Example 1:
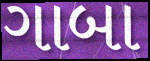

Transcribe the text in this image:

ગાબા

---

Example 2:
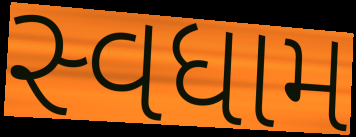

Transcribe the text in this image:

સ્વધામ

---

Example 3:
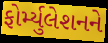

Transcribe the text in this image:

ફોર્મ્યુલેશનને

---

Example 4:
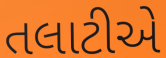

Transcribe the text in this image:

તલાટીએ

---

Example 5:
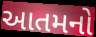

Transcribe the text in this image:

આતમનો